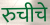
रुचीचे